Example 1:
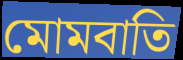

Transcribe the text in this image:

মোমবাতি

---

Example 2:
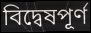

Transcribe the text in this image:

বিদ্বেষপূর্ণ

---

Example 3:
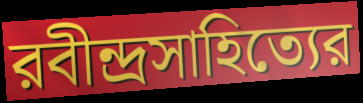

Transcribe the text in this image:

রবীন্দ্রসাহিত্যের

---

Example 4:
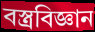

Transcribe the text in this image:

বস্ত্রবিজ্ঞান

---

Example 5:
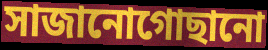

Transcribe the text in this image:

সাজানোগোছানো